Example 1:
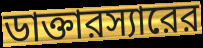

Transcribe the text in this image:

ডাক্তারস্যারের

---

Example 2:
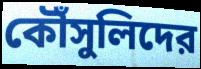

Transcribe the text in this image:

কৌঁসুলিদের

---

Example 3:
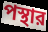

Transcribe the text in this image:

পস্থার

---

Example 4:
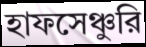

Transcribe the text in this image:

হাফসেঞ্চুরি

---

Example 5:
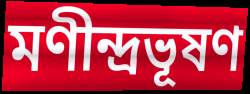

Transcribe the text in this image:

মণীন্দ্রভূষণ